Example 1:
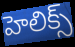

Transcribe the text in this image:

హెలిక్స్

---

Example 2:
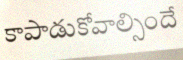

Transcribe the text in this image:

కాపాడుకోవాల్సిందే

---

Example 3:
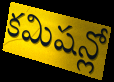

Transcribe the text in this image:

కమిషన్లో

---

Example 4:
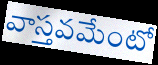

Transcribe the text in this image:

వాస్తవమేంటో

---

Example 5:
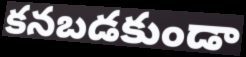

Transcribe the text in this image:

కనబడకుండా